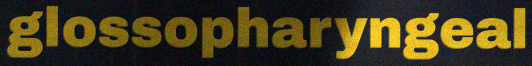
glossopharyngeal